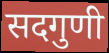
सदगुणी